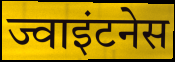
ज्वाइंटनेस